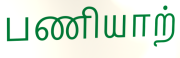
பணியாற்